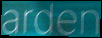
arden